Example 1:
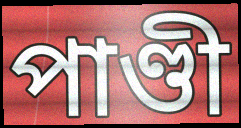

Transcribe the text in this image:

পাণ্ডী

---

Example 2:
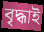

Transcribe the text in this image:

বৃদ্ধাই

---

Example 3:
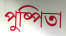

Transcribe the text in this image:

পুষ্পিতা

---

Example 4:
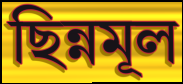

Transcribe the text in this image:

ছিন্নমূল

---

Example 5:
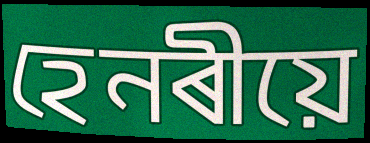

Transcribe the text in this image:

হেনৰীয়ে